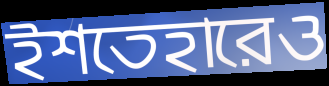
ইশতেহারেও